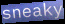
sneaky